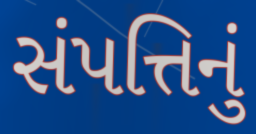
સંપત્તિનું